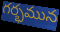
గర్భమున